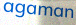
agaman